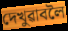
দেখুৱাবলৈ